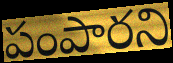
పంపారని